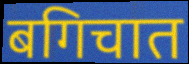
बगिचात